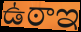
ఉఠాఇ